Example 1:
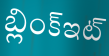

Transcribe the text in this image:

బ్లింక్ఇట్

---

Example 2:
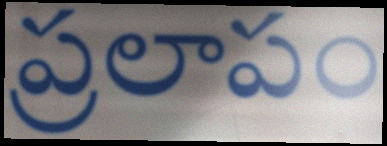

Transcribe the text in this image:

ప్రలాపం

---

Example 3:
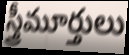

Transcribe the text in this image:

స్త్రీమూర్తులు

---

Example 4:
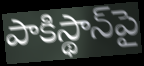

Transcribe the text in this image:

పాకిస్థాన్‌పై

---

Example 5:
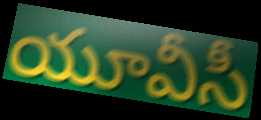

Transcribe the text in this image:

యూవీసీ